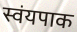
स्वंयपाक